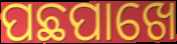
ପଛପାଖେ